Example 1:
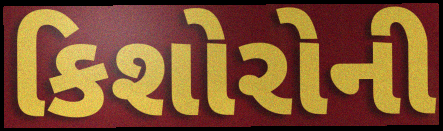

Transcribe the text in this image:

કિશોરોની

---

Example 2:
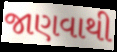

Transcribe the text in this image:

જાણવાથી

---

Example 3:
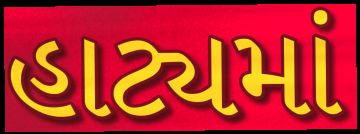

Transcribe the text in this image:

હાટ્યમાં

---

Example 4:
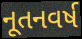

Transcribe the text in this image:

નૂતનવર્ષ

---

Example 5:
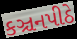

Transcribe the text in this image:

કઞ્ચનપીઠે